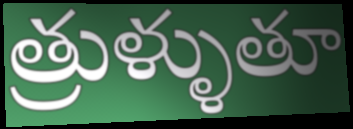
త్రుళ్ళుతూ